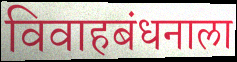
विवाहबंधनाला